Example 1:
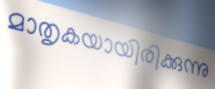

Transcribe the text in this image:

മാതൃകയായിരിക്കുന്നു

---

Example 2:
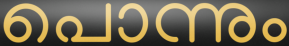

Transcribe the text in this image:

പൊന്നും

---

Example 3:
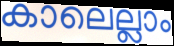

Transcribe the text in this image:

കാലെല്ലാം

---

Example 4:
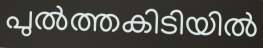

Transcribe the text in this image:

പുൽത്തകിടിയിൽ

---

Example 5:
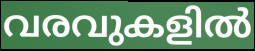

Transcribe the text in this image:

വരവുകളിൽ